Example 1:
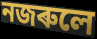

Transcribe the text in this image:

নজৰুলে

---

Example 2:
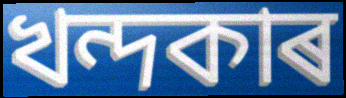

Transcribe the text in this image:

খন্দকাৰ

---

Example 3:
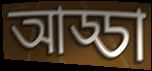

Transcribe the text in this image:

আড্ডা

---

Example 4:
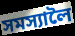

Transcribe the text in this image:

সমস্যালৈ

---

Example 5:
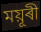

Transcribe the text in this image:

ময়ূৰী